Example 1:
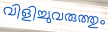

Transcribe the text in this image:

വിളിച്ചുവരുത്തും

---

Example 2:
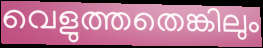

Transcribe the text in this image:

വെളുത്തതെങ്കിലും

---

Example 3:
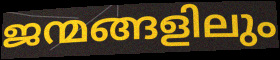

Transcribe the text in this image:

ജന്മങ്ങളിലും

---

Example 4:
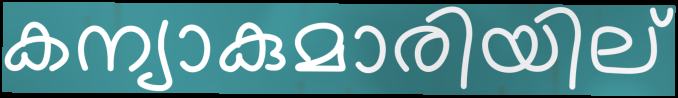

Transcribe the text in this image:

കന്യാകുമാരിയില്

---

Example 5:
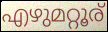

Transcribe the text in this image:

എഴുമറ്റൂര്